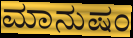
ಮಾನುಷಂ